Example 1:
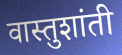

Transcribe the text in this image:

वास्तुशांती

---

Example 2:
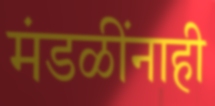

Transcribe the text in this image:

मंडळींनाही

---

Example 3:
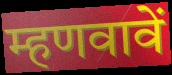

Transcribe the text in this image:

म्हणवावें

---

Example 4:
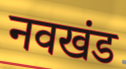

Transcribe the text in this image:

नवखंड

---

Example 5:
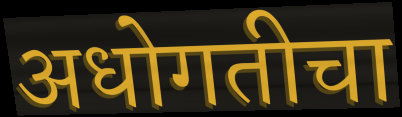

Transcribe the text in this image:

अधोगतीचा